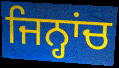
ਜਿਨ੍ਹਾਂਚ